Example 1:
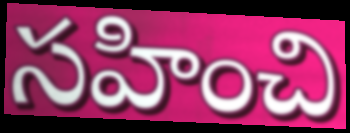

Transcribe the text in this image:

సహించి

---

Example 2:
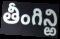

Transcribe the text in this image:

తీంగిన్ఱి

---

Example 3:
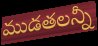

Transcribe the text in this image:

ముడతలన్నీ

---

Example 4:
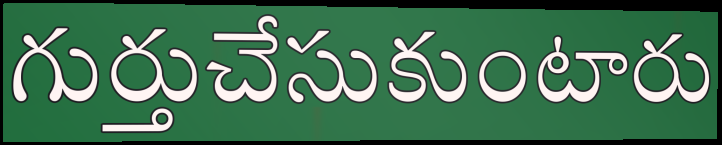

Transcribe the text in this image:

గుర్తుచేసుకుంటారు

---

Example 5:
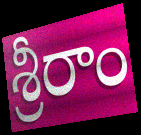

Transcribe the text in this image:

శ్రీరాం